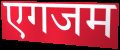
एगजम